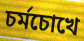
চর্মচোখে